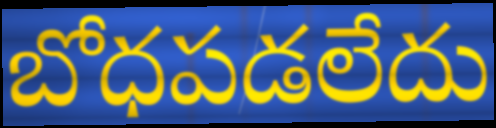
బోధపడలేదు